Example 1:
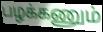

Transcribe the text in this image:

பழக்கணும்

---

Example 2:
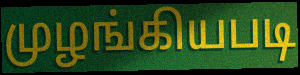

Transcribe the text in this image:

முழங்கியபடி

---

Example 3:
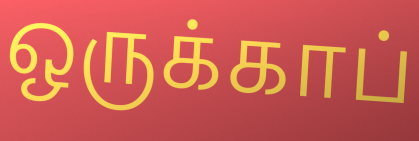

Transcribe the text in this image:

ஒருக்காப்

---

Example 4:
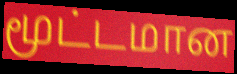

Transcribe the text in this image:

மூட்டமான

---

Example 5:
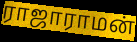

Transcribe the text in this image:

ராஜாராமன்